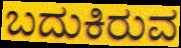
ಬದುಕಿರುವ